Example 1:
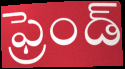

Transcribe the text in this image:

ఫ్రెండ్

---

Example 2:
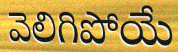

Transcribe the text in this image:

వెలిగిపోయే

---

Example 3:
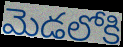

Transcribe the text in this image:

మెడలోకి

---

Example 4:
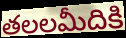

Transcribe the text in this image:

తలలమీదికి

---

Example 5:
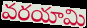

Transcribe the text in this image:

వరయామి